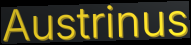
Austrinus